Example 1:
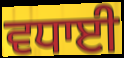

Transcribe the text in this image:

ਵਧਾਈ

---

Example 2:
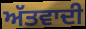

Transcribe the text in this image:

ਅੱਤਵਾਦੀ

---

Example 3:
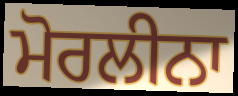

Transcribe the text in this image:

ਮੋਰਲੀਨਾ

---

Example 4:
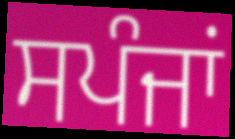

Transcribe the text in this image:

ਸਪੰਜਾਂ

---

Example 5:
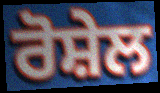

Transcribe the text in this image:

ਰੋਸ਼ੇਲ